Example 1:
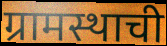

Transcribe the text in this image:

ग्रामस्थाची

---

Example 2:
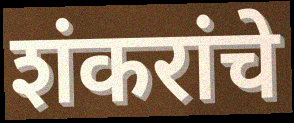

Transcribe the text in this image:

शंकरांचे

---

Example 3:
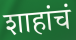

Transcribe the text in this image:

शाहांचं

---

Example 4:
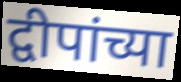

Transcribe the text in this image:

द्वीपांच्या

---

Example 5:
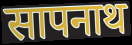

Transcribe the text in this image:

सापनाथ